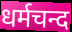
धर्मचन्द